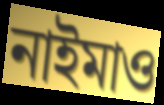
নাইমাও